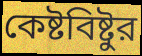
কেষ্টবিষ্টুর